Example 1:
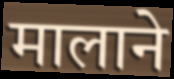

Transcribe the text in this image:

मालाने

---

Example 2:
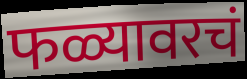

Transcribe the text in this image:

फळ्यावरचं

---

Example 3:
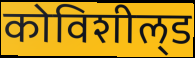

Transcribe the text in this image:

कोविशील्ड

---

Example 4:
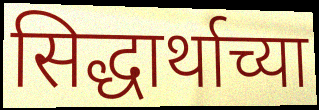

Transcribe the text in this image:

सिद्धार्थाच्या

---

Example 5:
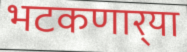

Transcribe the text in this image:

भटकणार्‍या